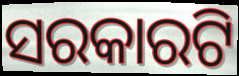
ସରକାରଟି